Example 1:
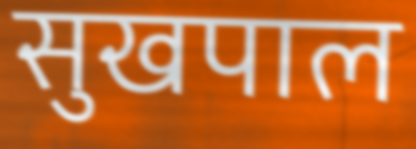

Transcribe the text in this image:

सुखपाल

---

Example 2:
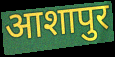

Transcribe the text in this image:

आशापुर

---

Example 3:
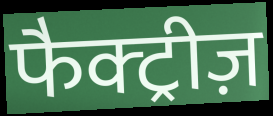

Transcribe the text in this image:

फैक्ट्रीज़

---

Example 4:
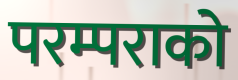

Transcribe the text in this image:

परम्पराको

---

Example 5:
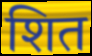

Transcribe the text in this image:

शित